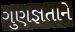
ગુણજ્ઞતાને